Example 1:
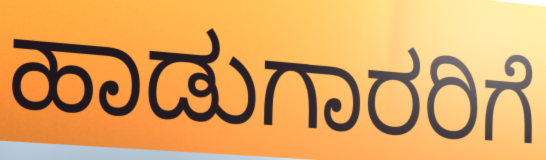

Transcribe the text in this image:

ಹಾಡುಗಾರರಿಗೆ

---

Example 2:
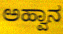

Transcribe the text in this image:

ಅಹ್ವಾನ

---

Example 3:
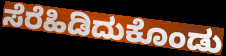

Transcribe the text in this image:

ಸೆರೆಹಿಡಿದುಕೊಂಡು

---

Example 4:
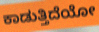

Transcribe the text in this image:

ಕಾಡುತ್ತಿದೆಯೋ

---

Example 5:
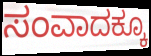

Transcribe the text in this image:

ಸಂವಾದಕ್ಕೂ